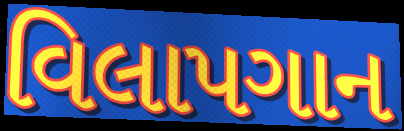
વિલાપગાન